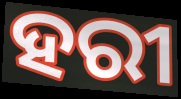
ହରୀ